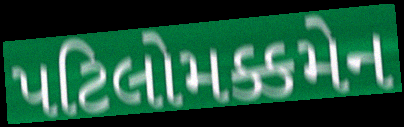
પટિલોમક્કમેન